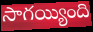
సాగయ్యింది